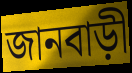
জানবাড়ী